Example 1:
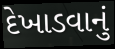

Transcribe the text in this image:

દેખાડવાનું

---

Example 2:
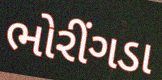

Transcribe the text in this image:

ભોરીંગડા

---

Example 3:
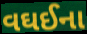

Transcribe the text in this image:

વઘઈના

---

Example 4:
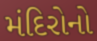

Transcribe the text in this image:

મંદિરોનો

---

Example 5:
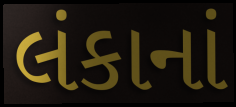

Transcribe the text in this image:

લંકાનાં